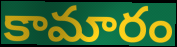
కామారం